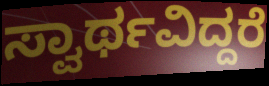
ಸ್ವಾರ್ಥವಿದ್ದರೆ